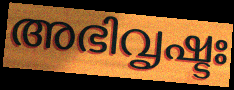
അഭിവൃഷ്ടഃ